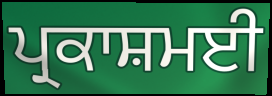
ਪ੍ਰਕਾਸ਼ਮਈ